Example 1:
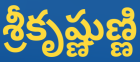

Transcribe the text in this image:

శ్రీకృష్ణుణ్ణి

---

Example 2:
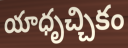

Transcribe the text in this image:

యాధృచ్చికం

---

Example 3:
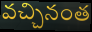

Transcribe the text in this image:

వచ్చినంత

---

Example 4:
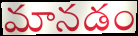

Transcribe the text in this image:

మానడం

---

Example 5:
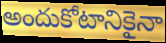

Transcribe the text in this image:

అందుకోటానికైనా